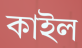
কাইল